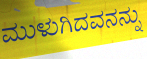
ಮುಳುಗಿದವನನ್ನು